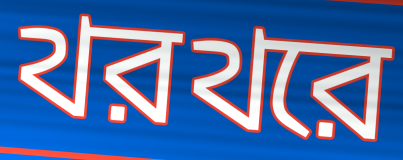
থরথরে